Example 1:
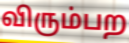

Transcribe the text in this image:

விரும்பற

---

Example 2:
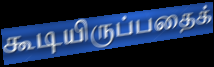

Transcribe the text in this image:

கூடியிருப்பதைக்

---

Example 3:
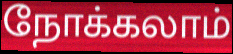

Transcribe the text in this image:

நோக்கலாம்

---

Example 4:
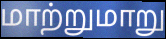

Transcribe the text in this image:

மாற்றுமாறு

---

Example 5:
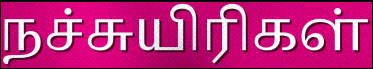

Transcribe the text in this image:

நச்சுயிரிகள்